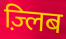
ज़्लिब